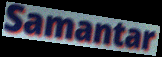
Samantar